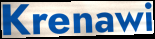
Krenawi